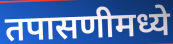
तपासणीमध्ये